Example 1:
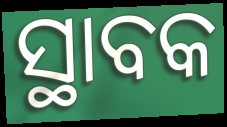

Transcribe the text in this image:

ସ୍ଥାବକ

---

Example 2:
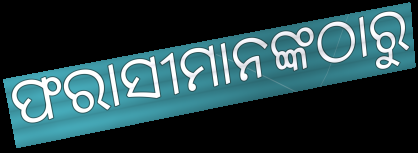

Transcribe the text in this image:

ଫରାସୀମାନଙ୍କଠାରୁ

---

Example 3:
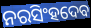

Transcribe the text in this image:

ନରସିଂହଦେବ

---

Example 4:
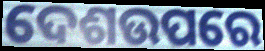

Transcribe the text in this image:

ଦେଶଉପରେ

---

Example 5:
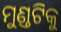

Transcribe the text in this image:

ମୁଣ୍ଡଟିକୁ